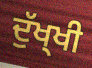
ਦੁੱਖ੍ਖੀ